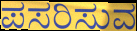
ಪಸರಿಸುವ